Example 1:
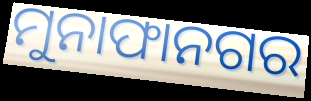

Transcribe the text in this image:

ମୁନାଫାନଗର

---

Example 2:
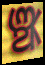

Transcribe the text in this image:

ଞ୍ଝ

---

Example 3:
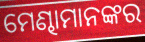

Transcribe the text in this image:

ମେଣ୍ଢାମାନଙ୍କର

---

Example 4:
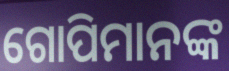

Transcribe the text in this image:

ଗୋପିମାନଙ୍କ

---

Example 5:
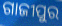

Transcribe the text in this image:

ଗାଜୀପୁର